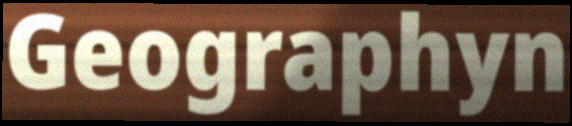
Geographyn